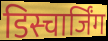
डिस्चार्जिंग